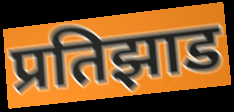
प्रतिझाड